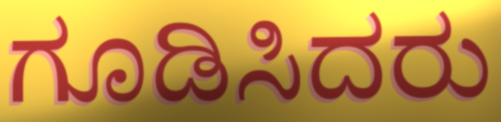
ಗೂಡಿಸಿದರು